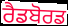
ਰੈਡਬੋਰਡ